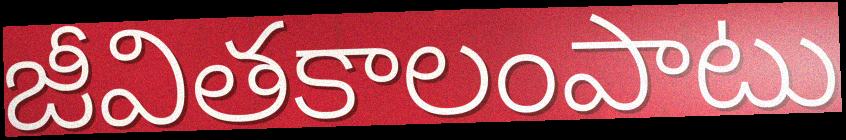
జీవితకాలంపాటు